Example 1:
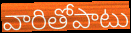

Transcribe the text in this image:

వారితోపాటు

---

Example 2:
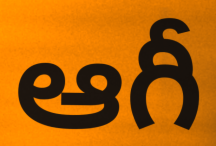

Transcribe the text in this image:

ఆగీ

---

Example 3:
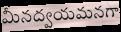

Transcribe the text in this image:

మీనద్వయమనగా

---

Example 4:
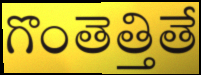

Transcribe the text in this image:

గొంతెత్తితే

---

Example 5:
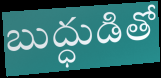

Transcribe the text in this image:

బుద్ధుడితో